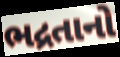
ભદ્રતાનો